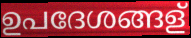
ഉപദേശങ്ങള്